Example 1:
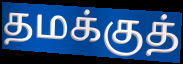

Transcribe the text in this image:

தமக்குத்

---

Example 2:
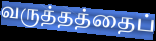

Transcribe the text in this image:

வருத்தத்தைப்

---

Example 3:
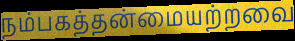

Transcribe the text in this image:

நம்பகத்தன்மையற்றவை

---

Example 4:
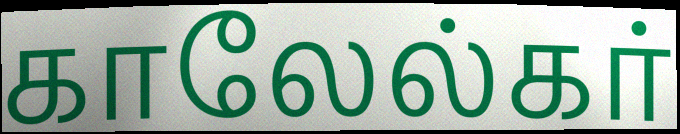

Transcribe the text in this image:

காலேல்கர்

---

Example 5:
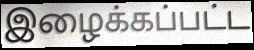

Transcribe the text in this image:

இழைக்கப்பட்ட